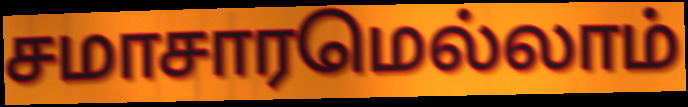
சமாசாரமெல்லாம்